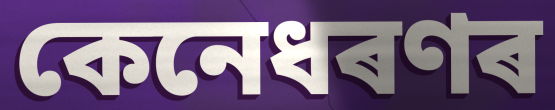
কেনেধৰণৰ